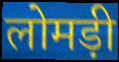
लोमड़ी